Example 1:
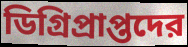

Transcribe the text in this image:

ডিগ্রিপ্রাপ্তদের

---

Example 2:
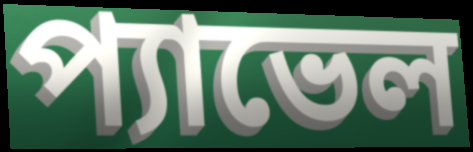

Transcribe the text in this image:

প্যাভেল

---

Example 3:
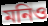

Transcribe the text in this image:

মনিও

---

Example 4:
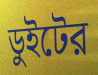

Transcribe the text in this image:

ডুইটের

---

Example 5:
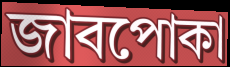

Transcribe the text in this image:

জাবপোকা